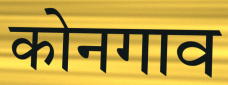
कोनगाव